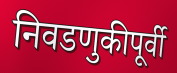
निवडणुकीपूर्वी